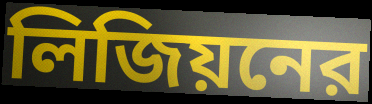
লিজিয়নের